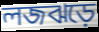
লজঝড়ে